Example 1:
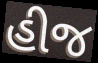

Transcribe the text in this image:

હીજ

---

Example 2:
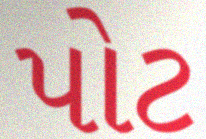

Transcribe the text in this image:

પોટ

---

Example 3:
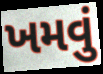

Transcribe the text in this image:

ખમવું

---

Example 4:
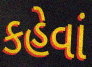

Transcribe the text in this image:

કહેવાં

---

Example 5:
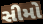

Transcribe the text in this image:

સીમો